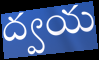
ద్వయ